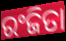
ରଂଜିତା